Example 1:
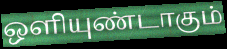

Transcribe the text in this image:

ஒளியுண்டாகும்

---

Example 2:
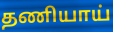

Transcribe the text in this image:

தணியாய்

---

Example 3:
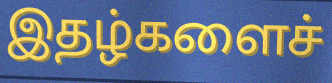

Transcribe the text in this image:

இதழ்களைச்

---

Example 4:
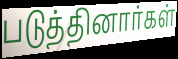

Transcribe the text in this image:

படுத்தினார்கள்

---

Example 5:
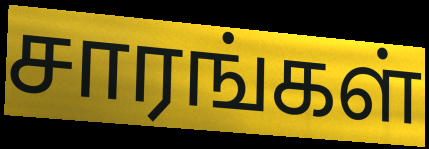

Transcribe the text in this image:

சாரங்கள்